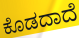
ಕೊಡದಾದೆ